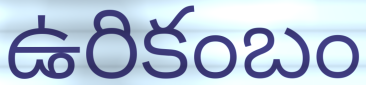
ఉరికంబం